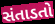
સંતાડતો